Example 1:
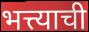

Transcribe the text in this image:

भत्त्याची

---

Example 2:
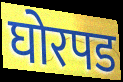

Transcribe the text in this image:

घोरपड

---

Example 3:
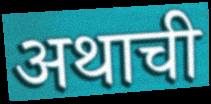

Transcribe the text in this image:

अथाची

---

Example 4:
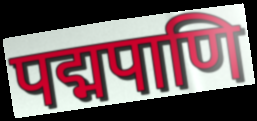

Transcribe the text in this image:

पद्मपाणि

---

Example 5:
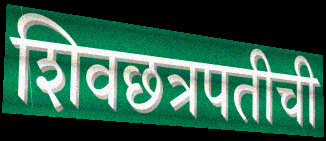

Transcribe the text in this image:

शिवछत्रपतीची